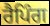
ਰੈਪਿੰਗ